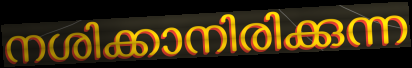
നശിക്കാനിരിക്കുന്ന